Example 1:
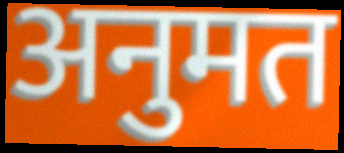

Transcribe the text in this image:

अनुमत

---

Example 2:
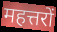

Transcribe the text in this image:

महत्तरों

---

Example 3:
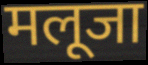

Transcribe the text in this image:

मलूजा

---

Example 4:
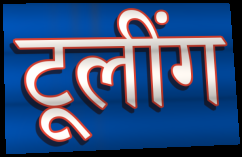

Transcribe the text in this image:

टूलींग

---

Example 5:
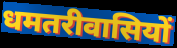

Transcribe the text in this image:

धमतरीवासियों